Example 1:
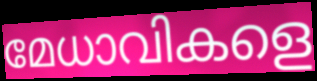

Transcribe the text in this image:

മേധാവികളെ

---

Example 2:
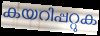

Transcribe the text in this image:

കയറിപ്പറ്റുക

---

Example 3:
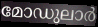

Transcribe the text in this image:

മോഡുലാർ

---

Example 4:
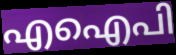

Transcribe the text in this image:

എഐപി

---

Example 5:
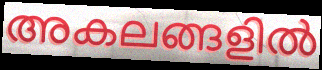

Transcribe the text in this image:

അകലങ്ങളിൽ